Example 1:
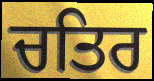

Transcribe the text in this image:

ਚਤਿਰ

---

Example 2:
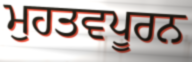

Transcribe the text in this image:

ਮੁਹਤਵਪੂਰਨ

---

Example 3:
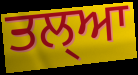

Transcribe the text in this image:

ਤਲ੍ਆ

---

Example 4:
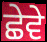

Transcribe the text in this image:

ਛੇਵੇ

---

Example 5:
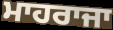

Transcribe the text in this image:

ਮਾਹਰਾਜਾ